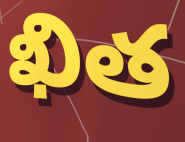
ఖిత